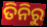
ତିନିରୁ